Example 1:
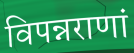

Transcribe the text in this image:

विपन्नराणां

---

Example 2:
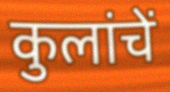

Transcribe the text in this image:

कुलांचें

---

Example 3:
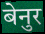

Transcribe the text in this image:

बेनुर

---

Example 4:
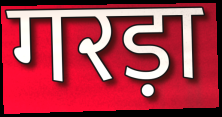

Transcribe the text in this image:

गरड़ा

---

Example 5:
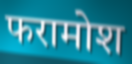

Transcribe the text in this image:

फरामोश